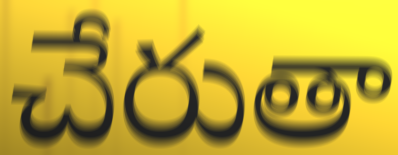
చేరుతా